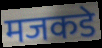
मजकडे